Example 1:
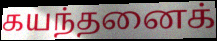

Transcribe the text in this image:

கயந்தனைக்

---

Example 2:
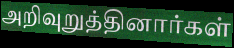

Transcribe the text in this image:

அறிவுறுத்தினார்கள்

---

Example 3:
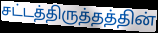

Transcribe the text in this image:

சட்டத்திருத்தத்தின்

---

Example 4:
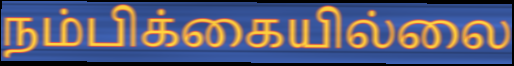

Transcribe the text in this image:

நம்பிக்கையில்லை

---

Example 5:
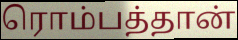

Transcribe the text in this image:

ரொம்பத்தான்